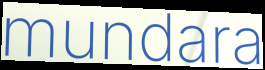
mundara